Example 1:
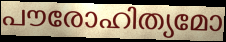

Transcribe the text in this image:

പൗരോഹിത്യമോ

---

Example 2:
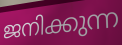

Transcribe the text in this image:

ജനിക്കുന്ന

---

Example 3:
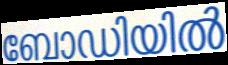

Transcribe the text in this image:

ബോഡിയിൽ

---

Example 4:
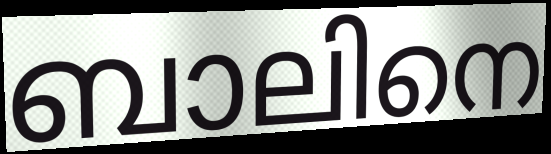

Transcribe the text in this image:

ബാലിനെ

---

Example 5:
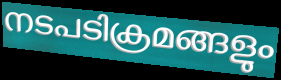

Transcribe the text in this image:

നടപടിക്രമങ്ങളും